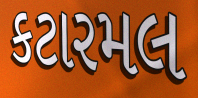
કટારમલ